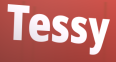
Tessy